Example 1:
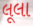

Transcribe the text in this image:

લૂલા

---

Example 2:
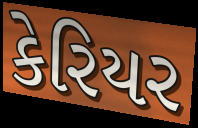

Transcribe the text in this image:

કેરિયર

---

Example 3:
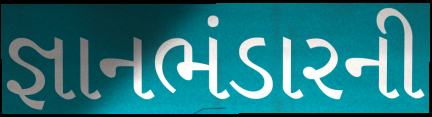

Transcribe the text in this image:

જ્ઞાનભંડારની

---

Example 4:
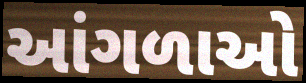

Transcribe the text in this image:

આંગળાઓ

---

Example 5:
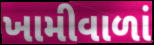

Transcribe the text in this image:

ખામીવાળાં